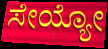
ಸೇಯ್ಯೋ